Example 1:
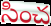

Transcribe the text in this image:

సించ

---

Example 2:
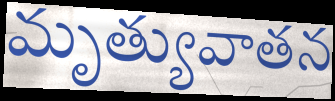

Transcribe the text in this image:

మృత్యువాతన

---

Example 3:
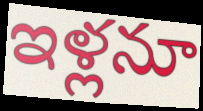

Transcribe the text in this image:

ఇళ్లనూ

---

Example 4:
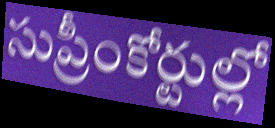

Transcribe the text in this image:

సుప్రీంకోర్టుల్లో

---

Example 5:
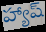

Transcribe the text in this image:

హ్యాష్